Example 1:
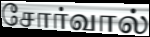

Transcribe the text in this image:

சோர்வால்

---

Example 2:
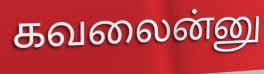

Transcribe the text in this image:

கவலைன்னு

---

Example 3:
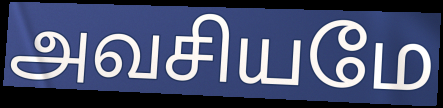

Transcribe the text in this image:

அவசியமே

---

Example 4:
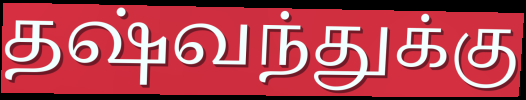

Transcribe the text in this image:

தஷ்வந்துக்கு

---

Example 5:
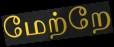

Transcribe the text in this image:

மேற்றே